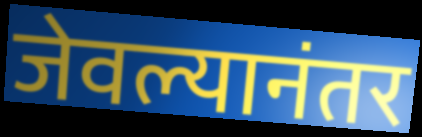
जेवल्यानंतर